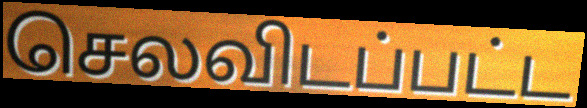
செலவிடப்பட்ட